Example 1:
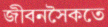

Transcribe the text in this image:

জীবনসৈকতে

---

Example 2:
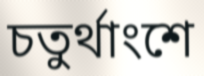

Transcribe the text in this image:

চতুর্থাংশে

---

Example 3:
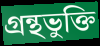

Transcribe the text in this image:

গ্রন্থভুক্তি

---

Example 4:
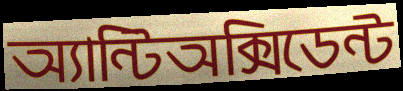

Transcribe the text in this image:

অ্যান্টিঅক্সিডেন্ট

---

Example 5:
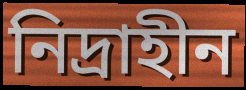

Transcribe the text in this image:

নিদ্রাহীন